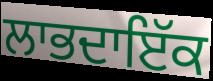
ਲਾਭਦਾਇੱਕ